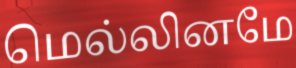
மெல்லினமே